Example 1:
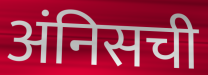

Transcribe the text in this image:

अंनिसची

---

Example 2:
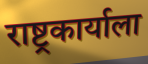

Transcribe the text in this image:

राष्ट्रकार्याला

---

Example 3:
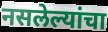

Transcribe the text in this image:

नसलेल्यांचा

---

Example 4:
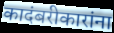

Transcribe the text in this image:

कादंबरीकारांना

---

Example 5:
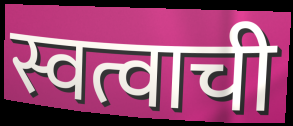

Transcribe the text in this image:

स्वत्वाची